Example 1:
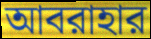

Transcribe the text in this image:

আবরাহার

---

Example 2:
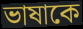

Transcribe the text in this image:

ভাষাকে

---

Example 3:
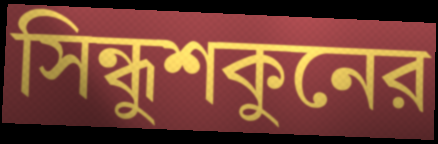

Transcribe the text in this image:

সিন্ধুশকুনের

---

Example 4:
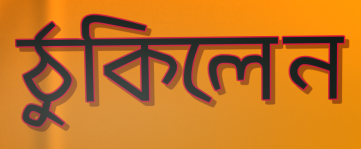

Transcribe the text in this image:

ঠুকিলেন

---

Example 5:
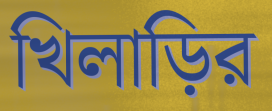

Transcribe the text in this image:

খিলাড়ির